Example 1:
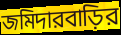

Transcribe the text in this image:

জমিদারবাড়ির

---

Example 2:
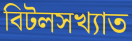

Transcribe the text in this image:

বিটলসখ্যাত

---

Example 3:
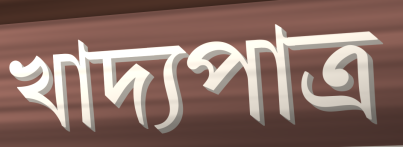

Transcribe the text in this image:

খাদ্যপাত্র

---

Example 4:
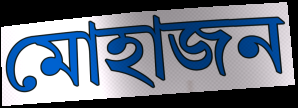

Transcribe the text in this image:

মোহাজন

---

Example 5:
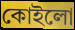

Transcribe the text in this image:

কোইলো